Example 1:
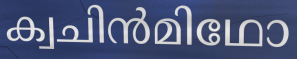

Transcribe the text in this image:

ക്വചിൻമിഥോ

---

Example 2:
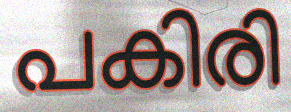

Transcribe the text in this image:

പകിരി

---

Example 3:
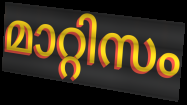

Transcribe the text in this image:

മാറ്റിസം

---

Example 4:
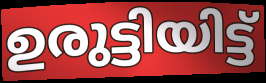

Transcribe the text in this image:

ഉരുട്ടിയിട്ട്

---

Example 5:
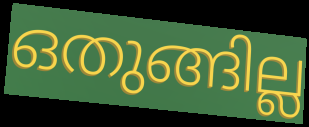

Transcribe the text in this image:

ഒതുങ്ങില്ല